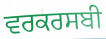
ਵਰਕਰਸਬੀ